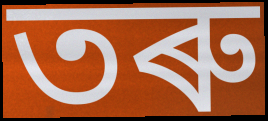
তৰু